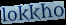
lokkho